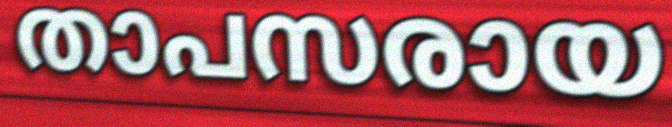
താപസരായ